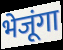
भेजूंगा